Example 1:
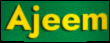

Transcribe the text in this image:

Ajeem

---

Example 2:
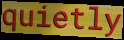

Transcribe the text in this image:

quietly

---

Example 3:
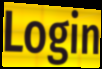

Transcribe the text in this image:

Login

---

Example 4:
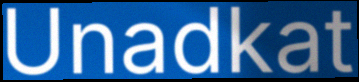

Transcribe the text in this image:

Unadkat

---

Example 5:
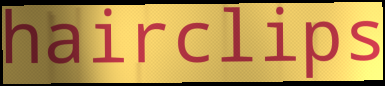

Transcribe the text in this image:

hairclips